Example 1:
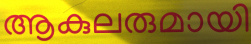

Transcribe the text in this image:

ആകുലരുമായി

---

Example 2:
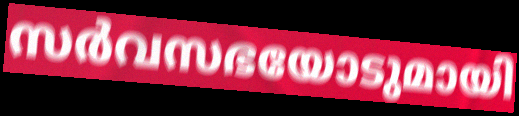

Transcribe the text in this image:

സർവസഭയോടുമായി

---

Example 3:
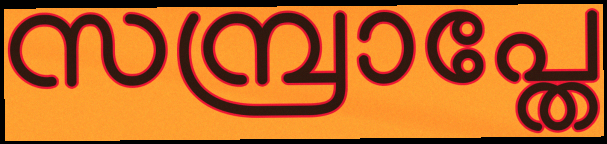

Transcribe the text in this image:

സമ്പ്രാപ്തേ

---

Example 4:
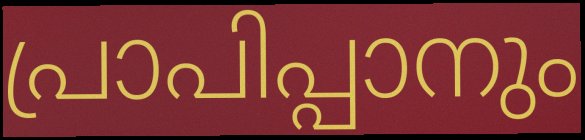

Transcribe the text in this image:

പ്രാപിപ്പാനും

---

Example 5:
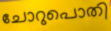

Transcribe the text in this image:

ചോറുപൊതി